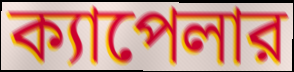
ক্যাপেলার